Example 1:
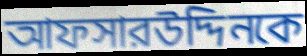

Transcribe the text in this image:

আফসারউদ্দিনকে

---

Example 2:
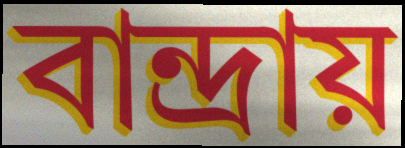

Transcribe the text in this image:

বান্দ্রায়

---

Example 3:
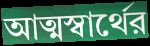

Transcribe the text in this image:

আত্মস্বার্থের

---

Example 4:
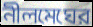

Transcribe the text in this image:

নীলমেঘের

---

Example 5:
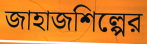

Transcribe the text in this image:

জাহাজশিল্পের